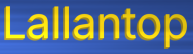
Lallantop